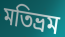
মতিভ্রম